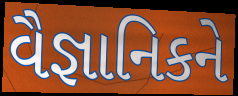
વૈજ્ઞાનિકને